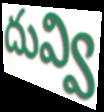
దువ్వి